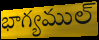
భాగ్యముల్